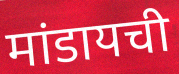
मांडायची